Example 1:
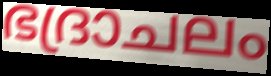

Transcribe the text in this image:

ഭദ്രാചലം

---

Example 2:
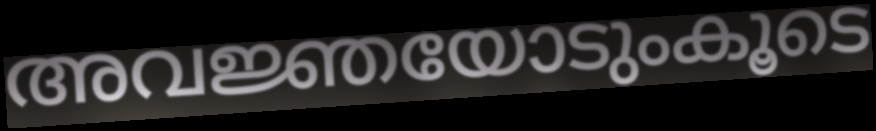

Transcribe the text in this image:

അവജ്ഞയോടുംകൂടെ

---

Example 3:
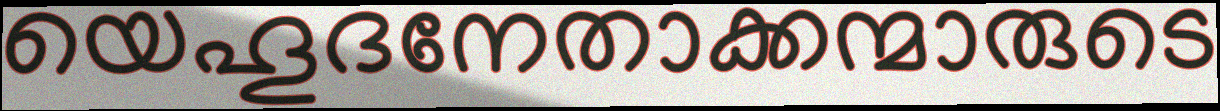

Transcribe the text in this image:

യെഹൂദനേതാക്കന്മാരുടെ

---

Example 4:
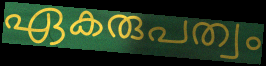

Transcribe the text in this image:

ഏകരുപത്വം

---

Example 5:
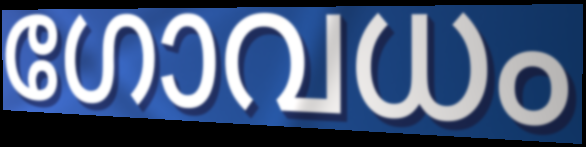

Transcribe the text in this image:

ഗോവധം